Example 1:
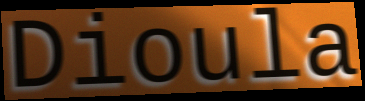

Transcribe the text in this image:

Dioula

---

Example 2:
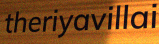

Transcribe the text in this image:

theriyavillai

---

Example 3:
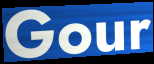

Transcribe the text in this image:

Gour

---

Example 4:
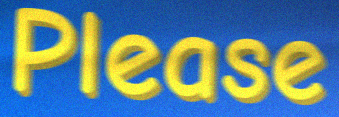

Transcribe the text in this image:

Please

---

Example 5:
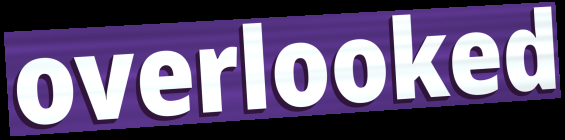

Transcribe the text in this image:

overlooked